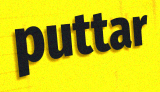
puttar